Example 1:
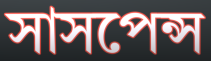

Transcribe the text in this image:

সাসপেন্স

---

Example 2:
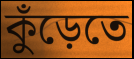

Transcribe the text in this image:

কুঁড়েতে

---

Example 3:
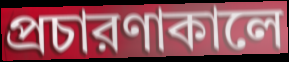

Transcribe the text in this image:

প্রচারণাকালে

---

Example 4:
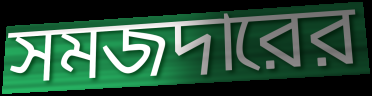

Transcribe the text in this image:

সমজদারের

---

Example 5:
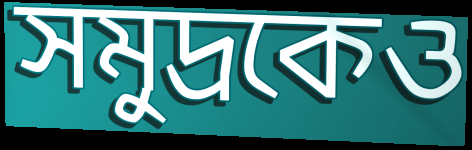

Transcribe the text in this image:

সমুদ্রকেও